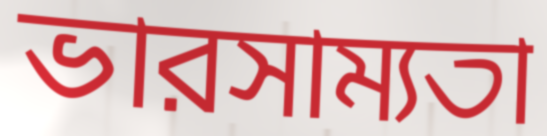
ভারসাম্যতা